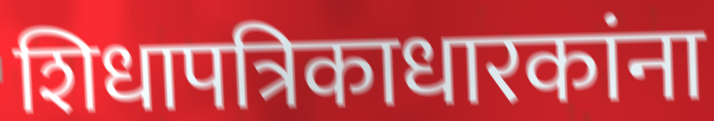
शिधापत्रिकाधारकांना